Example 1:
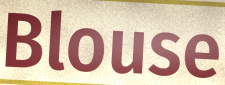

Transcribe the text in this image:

Blouse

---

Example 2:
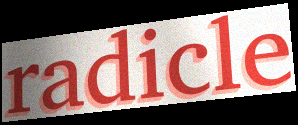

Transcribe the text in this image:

radicle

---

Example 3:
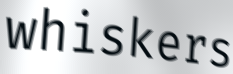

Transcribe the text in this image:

whiskers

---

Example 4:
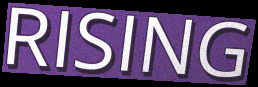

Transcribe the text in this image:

RISING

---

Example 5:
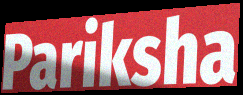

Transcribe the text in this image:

Pariksha